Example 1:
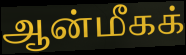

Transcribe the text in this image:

ஆன்மீகக்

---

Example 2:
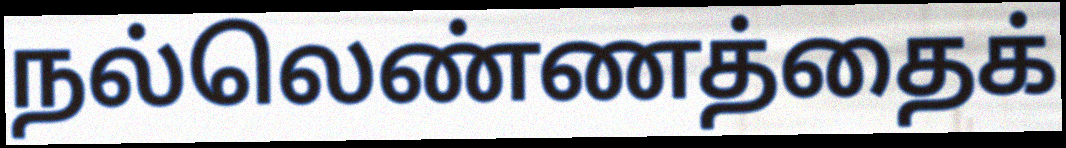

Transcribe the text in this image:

நல்லெண்ணத்தைக்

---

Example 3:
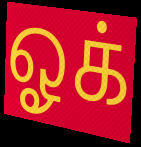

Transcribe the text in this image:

ஓக்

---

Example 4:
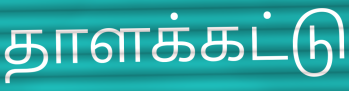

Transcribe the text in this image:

தாளக்கட்டு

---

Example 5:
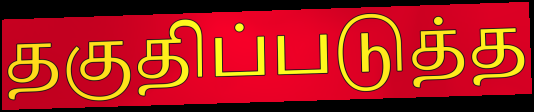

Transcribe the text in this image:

தகுதிப்படுத்த